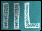
IIL